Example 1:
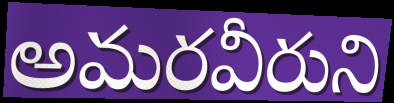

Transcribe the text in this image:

అమరవీరుని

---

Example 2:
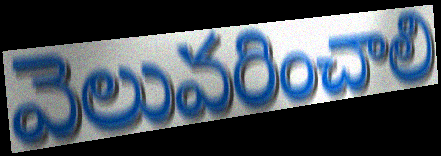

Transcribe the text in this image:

వెలువరించాలి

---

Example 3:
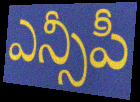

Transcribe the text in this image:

ఎన్సీపీ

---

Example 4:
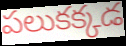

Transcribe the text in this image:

పలుకక్కడ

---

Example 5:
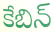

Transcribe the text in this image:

కేబిన్